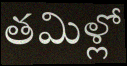
తమిళ్లో